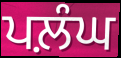
ਪਲ਼ੰਘ